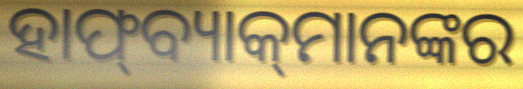
ହାଫ୍‍ବ୍ୟାକ୍‍ମାନଙ୍କର